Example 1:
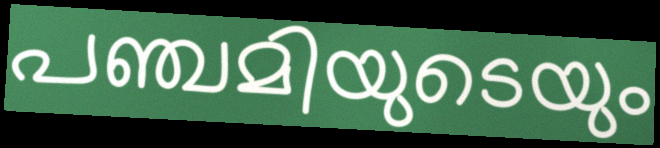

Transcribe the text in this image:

പഞ്ചമിയുടെയും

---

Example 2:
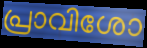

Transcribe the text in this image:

പ്രാവിശോ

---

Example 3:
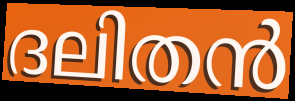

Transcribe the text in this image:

ദലിതൻ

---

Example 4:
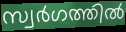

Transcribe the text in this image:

സ്വർഗത്തിൽ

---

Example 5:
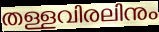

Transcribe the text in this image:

തള്ളവിരലിനും